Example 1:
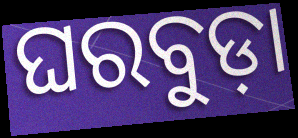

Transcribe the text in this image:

ଘରବୁଡ଼ା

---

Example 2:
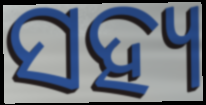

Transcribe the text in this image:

ସହ୍ଯ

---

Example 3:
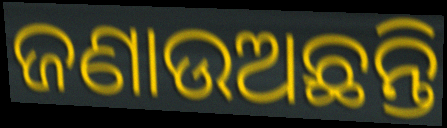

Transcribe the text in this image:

ଜଣାଉଅଛନ୍ତି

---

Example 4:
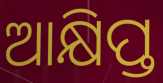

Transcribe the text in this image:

ଆକ୍ଷିପ୍ତ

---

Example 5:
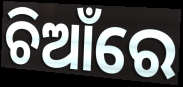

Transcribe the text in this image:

ଚିଆଁରେ